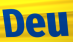
Deu